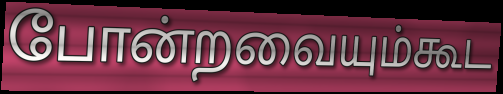
போன்றவையும்கூட